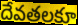
దేవతలకూ